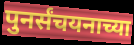
पुनर्संचयनाच्या